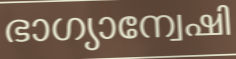
ഭാഗ്യാന്വേഷി